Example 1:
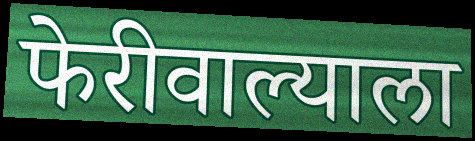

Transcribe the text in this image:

फेरीवाल्याला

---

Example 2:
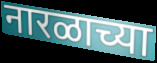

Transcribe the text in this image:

नारळाच्या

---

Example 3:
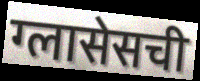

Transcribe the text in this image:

ग्लासेसची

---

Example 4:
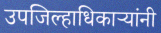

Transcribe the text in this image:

उपजिल्हाधिकाऱ्यांनी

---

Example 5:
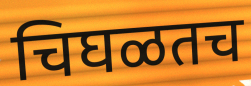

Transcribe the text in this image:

चिघळतच